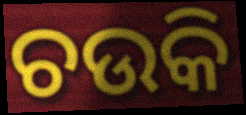
ଚଉକି